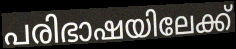
പരിഭാഷയിലേക്ക്